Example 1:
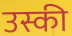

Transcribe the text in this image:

उस्‍की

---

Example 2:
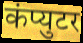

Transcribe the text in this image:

कंप्युटर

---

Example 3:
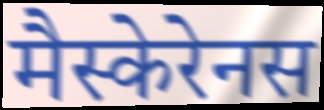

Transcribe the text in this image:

मैस्केरेनस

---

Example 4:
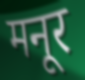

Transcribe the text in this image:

मनूर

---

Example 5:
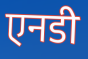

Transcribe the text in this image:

एनडी